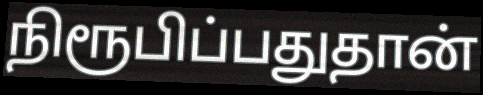
நிரூபிப்பதுதான்